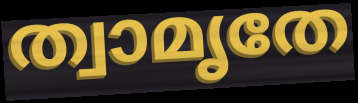
ത്വാമൃതേ